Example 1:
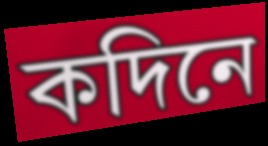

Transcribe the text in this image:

কদিনে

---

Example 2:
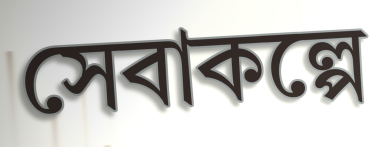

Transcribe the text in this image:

সেবাকল্পে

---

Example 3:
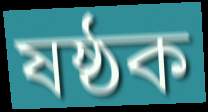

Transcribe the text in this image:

ষষ্ঠক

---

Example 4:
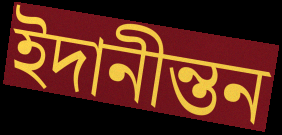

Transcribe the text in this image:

ইদানীন্তন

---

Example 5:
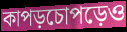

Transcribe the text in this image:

কাপড়চোপড়েও